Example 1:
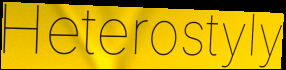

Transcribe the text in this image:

Heterostyly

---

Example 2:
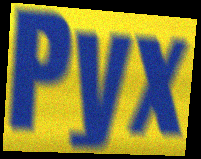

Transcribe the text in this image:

Pyx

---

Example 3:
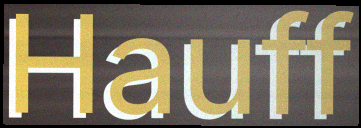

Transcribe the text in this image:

Hauff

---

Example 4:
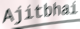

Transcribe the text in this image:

Ajitbhai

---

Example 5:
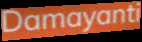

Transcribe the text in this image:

Damayanti